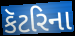
કૅટરિના